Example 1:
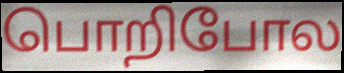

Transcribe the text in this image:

பொறிபோல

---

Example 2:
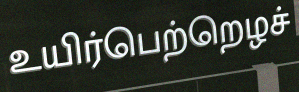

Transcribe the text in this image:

உயிர்பெற்றெழச்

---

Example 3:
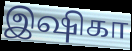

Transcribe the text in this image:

இஷிகா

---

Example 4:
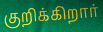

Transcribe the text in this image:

குறிக்கிறார்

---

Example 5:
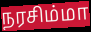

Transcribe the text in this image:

நரசிம்மா